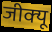
जीक्यू